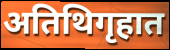
अतिथिगृहात